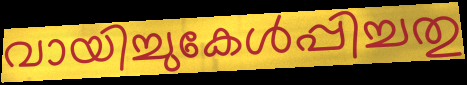
വായിച്ചുകേൾപ്പിച്ചതു